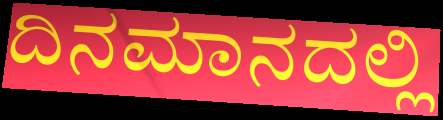
ದಿನಮಾನದಲ್ಲಿ